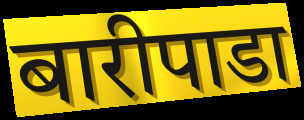
बारीपाडा